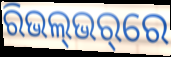
ରିଭଲ୍‌ଭର୍‌ରେ